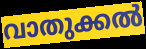
വാതുക്കൽ